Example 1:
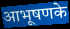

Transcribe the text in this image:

आभूषणके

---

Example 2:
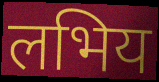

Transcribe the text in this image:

लभिय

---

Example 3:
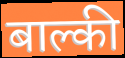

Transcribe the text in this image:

बाल्की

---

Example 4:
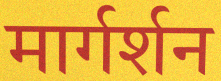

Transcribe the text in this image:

मार्गर्शन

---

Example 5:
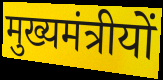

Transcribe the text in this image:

मुख्यमंत्रीयों